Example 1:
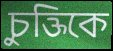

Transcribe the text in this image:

চুক্তিকে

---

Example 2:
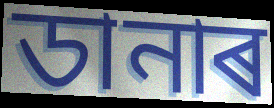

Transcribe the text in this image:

ডানাৰ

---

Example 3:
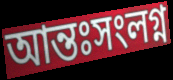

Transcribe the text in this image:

আন্তঃসংলগ্ন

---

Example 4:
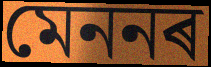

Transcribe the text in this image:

মেননৰ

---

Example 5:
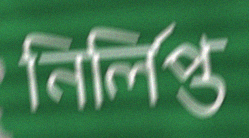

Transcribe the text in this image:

নিৰ্লিপ্ত